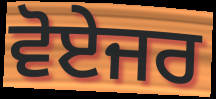
ਵੋਏਜਰ